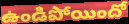
ఉండిపోయిందో